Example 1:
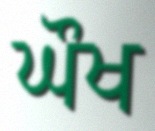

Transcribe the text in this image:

ਘੌਖ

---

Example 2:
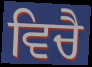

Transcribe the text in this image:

ਵਿਚੈ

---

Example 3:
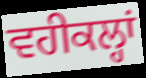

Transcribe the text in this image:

ਵਹੀਕਲ੍ਹਾਂ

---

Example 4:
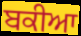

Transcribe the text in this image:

ਬਕੀਆ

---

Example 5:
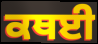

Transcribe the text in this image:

ਕਥਈ